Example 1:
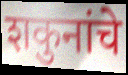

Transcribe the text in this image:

शकुनांचे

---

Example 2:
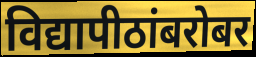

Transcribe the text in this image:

विद्यापीठांबरोबर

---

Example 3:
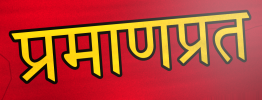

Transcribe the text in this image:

प्रमाणप्रत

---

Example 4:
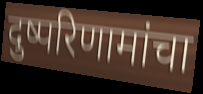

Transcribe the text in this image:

दुष्परिणामांचा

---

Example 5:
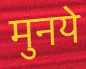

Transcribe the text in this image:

मुनये